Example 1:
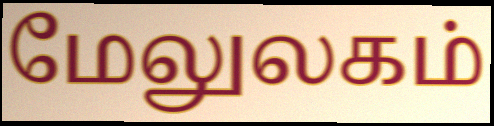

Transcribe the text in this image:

மேலுலகம்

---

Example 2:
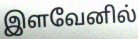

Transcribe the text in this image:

இளவேனில்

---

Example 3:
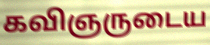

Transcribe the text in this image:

கவிஞருடைய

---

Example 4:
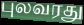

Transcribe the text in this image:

புலவரது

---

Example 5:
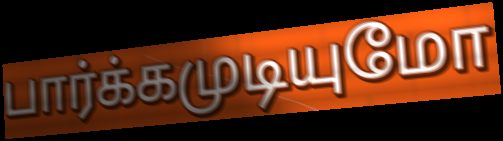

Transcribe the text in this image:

பார்க்கமுடியுமோ